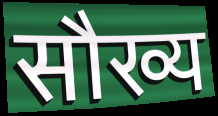
सौख्य